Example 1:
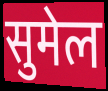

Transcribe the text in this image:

सुमेल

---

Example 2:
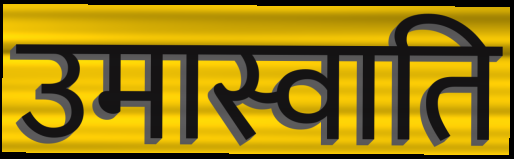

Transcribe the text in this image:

उमास्वाति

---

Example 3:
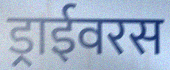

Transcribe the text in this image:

ड्राईवरस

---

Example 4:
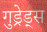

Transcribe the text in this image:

गुड्रेड्स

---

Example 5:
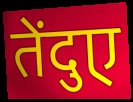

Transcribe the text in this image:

तेंदुए